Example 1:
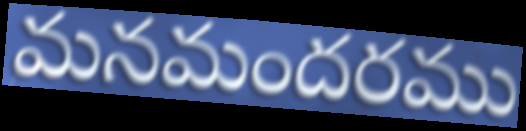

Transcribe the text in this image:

మనమందరము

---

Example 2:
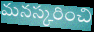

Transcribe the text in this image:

మనస్కరించి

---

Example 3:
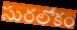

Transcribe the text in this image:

సురలోకం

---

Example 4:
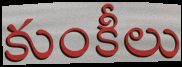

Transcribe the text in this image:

కుంకీలు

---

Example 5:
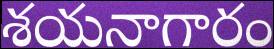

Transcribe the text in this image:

శయనాగారం